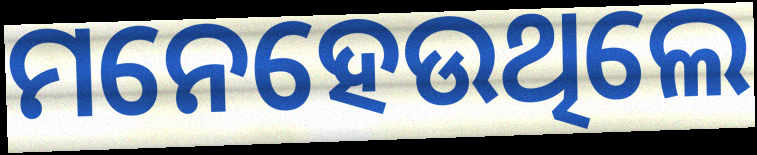
ମନେହେଉଥିଲେ